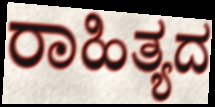
ರಾಹಿತ್ಯದ